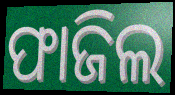
ଫାଜିଲ